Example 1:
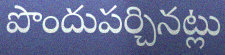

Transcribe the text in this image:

పొందుపర్చినట్లు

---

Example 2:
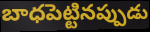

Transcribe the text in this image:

బాధపెట్టినప్పుడు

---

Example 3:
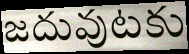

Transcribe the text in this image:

జదువుటకు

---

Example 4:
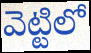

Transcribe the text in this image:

వెట్టిలో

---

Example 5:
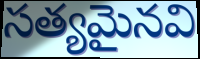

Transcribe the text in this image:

సత్యమైనవి